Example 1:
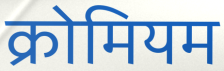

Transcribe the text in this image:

क्रोमियम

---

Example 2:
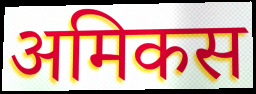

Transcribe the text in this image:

अमिकस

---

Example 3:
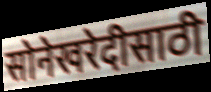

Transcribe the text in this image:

सोनेखरेदीसाठी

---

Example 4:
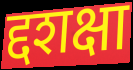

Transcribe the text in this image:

द्दशक्षा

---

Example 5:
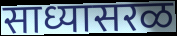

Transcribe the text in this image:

साध्यासरळ